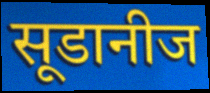
सूडानीज